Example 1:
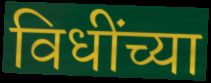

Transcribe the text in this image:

विधींच्या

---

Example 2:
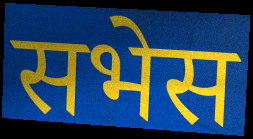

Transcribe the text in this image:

सभेस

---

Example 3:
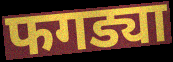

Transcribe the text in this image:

फगड्या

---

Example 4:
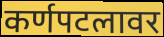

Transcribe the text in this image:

कर्णपटलावर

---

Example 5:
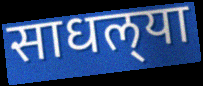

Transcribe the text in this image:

साधल्या